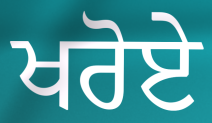
ਖਰੋਏ